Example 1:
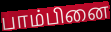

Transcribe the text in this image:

பாம்பினை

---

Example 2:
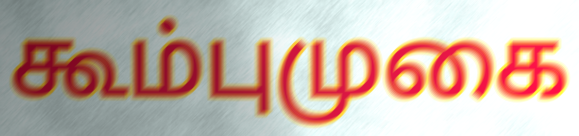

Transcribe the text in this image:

கூம்புமுகை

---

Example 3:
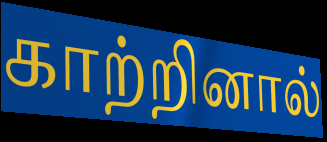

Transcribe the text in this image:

காற்றினால்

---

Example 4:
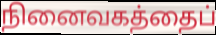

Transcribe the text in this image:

நினைவகத்தைப்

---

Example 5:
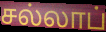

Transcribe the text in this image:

சல்லாப்